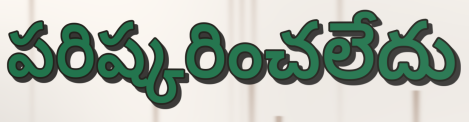
పరిష్కరించలేదు